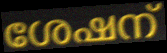
ശേഷന്